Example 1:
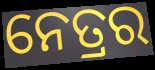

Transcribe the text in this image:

ନେତ୍ରର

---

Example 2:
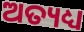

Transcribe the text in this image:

ଅତ୍ୟଧ୍ୟ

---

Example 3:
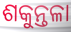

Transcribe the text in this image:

ଶକୁନ୍ତଳା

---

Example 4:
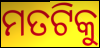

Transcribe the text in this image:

ମତଟିକୁ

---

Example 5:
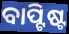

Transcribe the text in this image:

ବାପ୍ଟିଷ୍ଟ